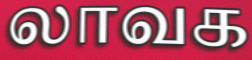
லாவக